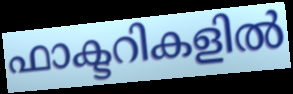
ഫാക്ടറികളിൽ